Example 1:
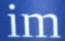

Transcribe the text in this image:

im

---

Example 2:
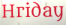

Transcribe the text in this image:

Hriday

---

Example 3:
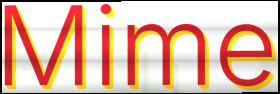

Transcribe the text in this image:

Mime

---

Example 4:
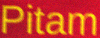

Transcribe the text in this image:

Pitam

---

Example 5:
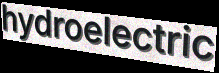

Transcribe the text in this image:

hydroelectric